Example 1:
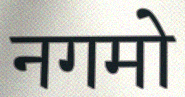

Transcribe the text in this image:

नगमो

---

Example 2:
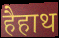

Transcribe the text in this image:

हैहाथ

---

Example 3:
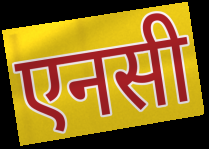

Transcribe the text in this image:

एनसी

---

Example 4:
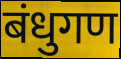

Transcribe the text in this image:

बंधुगण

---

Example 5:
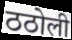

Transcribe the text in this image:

ठठोली